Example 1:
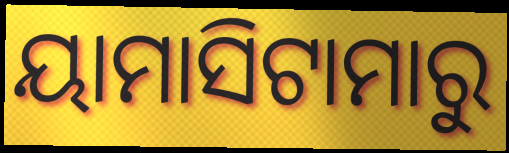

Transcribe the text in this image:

ୟାମାସିଟାମାରୁ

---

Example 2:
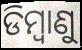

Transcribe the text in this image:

ଡିମ୍ୱାଣୁ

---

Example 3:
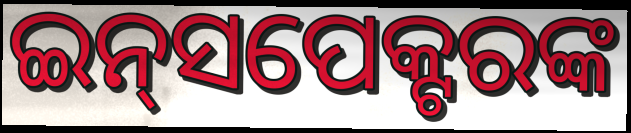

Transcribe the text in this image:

ଇନ୍‍ସପେକ୍ଟରଙ୍କ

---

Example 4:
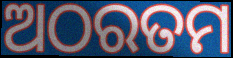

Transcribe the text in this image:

ଅଠରତମ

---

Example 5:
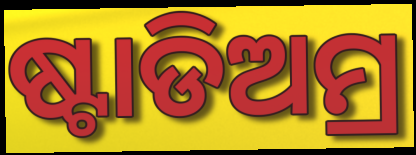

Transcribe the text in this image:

ଷ୍ଟାଡିଅମ୍ର